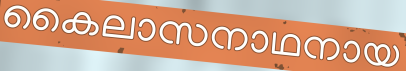
കൈലാസനാഥനായ